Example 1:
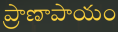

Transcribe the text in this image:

ప్రాణాపాయం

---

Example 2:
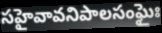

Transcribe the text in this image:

సహైవావనిపాలసంఘైః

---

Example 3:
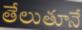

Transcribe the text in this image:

తేలుతూనే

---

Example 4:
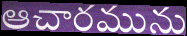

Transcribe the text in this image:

ఆచారమును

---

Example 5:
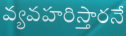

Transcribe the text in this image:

వ్యవహరిస్తారనే